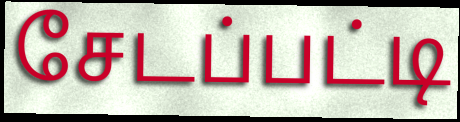
சேடப்பட்டி